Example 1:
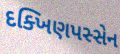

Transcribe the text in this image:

દક્ખિણપસ્સેન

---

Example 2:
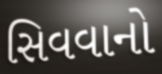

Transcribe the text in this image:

સિવવાનો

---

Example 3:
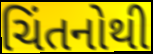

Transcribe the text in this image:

ચિંતનોથી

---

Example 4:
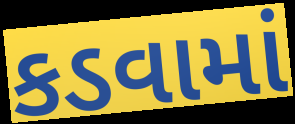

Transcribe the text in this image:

કડવામાં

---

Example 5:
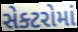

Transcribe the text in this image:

સેક્ટરોમાં